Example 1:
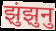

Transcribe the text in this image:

झुंझुनु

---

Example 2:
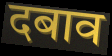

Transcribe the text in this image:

दबाव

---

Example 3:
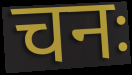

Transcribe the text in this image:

चनः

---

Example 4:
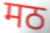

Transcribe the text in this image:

मठ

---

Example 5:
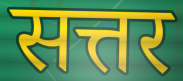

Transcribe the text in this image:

सत्तर